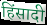
हिंसादी